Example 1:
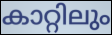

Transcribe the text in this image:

കാറ്റിലും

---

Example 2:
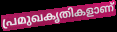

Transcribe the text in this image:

പ്രമുഖകൃതികളാണ്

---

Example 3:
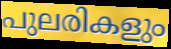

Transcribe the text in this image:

പുലരികളും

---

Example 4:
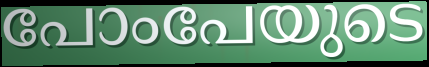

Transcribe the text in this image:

പോംപേയുടെ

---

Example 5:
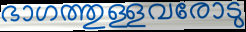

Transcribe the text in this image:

ഭാഗത്തുള്ളവരോടു